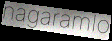
nagaramlo